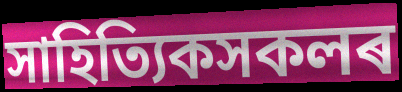
সাহিত্যিকসকলৰ